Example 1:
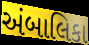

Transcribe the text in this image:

અંબાલિકા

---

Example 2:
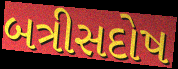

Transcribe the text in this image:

બત્રીસદોષ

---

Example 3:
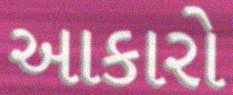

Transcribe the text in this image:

આકારો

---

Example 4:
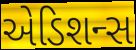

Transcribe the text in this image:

એડિશન્સ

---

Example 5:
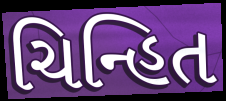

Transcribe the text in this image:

ચિન્હિત